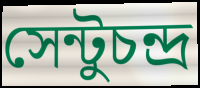
সেন্টুচন্দ্র